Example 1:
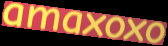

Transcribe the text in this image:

amaxoxo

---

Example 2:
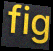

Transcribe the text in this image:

fig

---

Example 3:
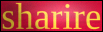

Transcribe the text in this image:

sharire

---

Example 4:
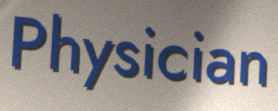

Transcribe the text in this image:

Physician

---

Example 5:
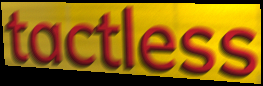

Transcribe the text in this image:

tactless